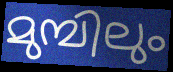
മുമ്പിലും